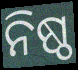
ନିଷ୍ଠ